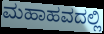
ಮಹಾಹವದಲ್ಲಿ